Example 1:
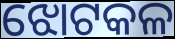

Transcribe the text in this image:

ଝୋଟକଳ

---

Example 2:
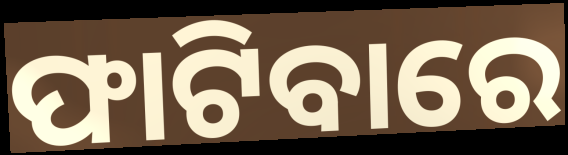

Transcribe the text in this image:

ଫାଟିବାରେ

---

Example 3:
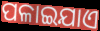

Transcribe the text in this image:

ପଳାଇଯାଏ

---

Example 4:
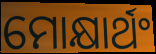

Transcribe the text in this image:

ମୋକ୍ଷାର୍ଥଂ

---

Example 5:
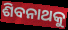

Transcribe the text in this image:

ଶିବନାଥକୁ